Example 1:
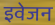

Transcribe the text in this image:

इवेजन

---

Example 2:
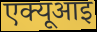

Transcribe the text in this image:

एक्यूआइ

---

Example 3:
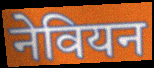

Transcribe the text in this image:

नेवियन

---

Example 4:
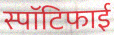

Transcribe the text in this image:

स्पॉटिफाई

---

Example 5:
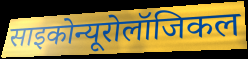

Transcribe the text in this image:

साइकोन्यूरोलॉजिकल